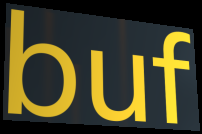
buf